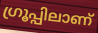
ഗ്രൂപ്പിലാണ്